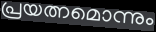
പ്രയത്നമൊന്നും